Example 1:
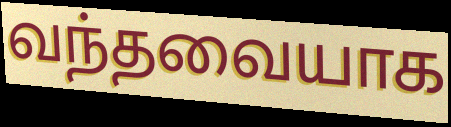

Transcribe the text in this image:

வந்தவையாக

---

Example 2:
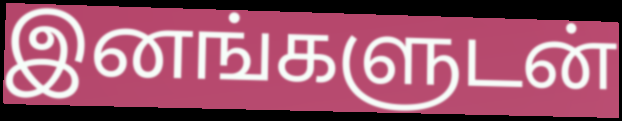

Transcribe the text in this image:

இனங்களுடன்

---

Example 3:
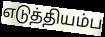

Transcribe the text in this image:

எடுத்தியம்ப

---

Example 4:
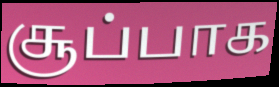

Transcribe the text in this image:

சூப்பாக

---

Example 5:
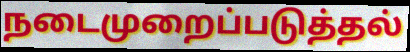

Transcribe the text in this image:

நடைமுறைப்படுத்தல்